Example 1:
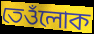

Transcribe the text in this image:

তেওঁলোক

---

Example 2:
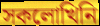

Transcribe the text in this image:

সকলোখিনি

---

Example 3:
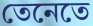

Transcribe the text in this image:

তেনেতে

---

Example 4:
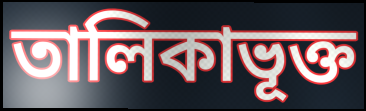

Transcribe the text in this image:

তালিকাভূক্ত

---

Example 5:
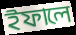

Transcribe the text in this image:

ইফালে